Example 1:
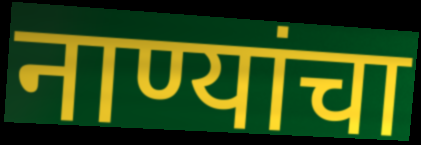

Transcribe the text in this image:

नाण्यांचा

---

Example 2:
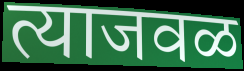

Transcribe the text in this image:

त्याजवळ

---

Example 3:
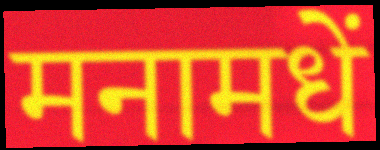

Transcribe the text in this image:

मनामधें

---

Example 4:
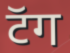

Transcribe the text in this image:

टॅग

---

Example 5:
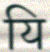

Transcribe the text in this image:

यि